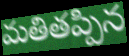
మతితప్పిన